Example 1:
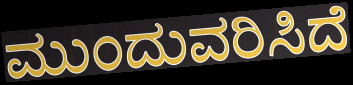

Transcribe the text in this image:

ಮುಂದುವರಿಸಿದೆ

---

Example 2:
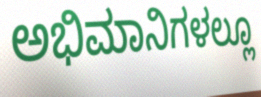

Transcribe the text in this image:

ಅಭಿಮಾನಿಗಳಲ್ಲೂ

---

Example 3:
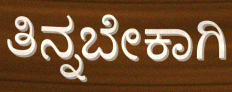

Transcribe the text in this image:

ತಿನ್ನಬೇಕಾಗಿ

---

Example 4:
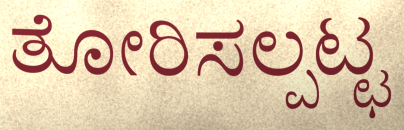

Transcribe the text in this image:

ತೋರಿಸಲ್ಪಟ್ಟ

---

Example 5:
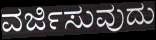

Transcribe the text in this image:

ವರ್ಜಿಸುವುದು